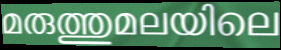
മരുത്തുമലയിലെ